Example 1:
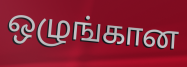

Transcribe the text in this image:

ஒழுங்கான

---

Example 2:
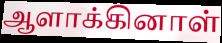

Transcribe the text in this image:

ஆளாக்கினாள்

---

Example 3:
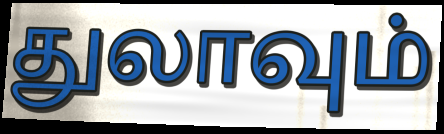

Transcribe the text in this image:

துலாவும்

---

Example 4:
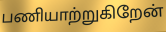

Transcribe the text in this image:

பணியாற்றுகிறேன்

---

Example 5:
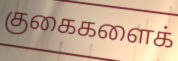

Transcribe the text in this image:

குகைகளைக்